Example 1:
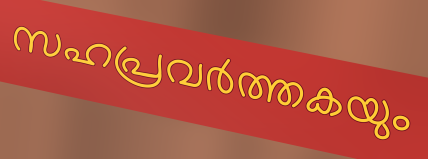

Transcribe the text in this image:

സഹപ്രവർത്തകയും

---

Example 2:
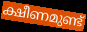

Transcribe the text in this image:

ക്ഷീണമുണ്ട്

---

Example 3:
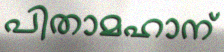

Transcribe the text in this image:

പിതാമഹാന്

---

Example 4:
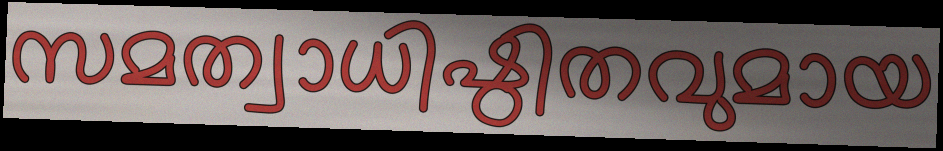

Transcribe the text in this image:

സമത്വാധിഷ്ഠിതവുമായ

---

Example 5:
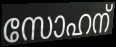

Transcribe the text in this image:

സോഹന്